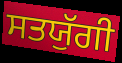
ਸਤਯੁੱਗੀ